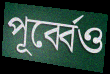
পূর্ব্বেও